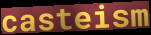
casteism